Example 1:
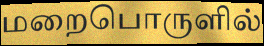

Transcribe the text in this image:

மறைபொருளில்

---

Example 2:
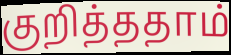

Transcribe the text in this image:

குறித்ததாம்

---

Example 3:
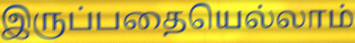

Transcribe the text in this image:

இருப்பதையெல்லாம்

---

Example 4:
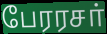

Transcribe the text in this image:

பேரரசர்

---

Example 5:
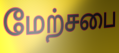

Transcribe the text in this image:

மேற்சபை